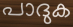
പാദുക